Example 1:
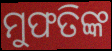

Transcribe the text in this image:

ମୁଫତିଙ୍କ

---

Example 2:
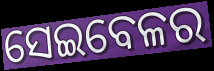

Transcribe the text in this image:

ସେଇବେଳର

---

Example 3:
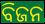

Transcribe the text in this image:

ବିଜନ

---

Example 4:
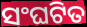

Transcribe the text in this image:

ସଂଘଟିତ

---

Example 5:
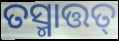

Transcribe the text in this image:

ତସ୍ମାତ୍ତତ୍